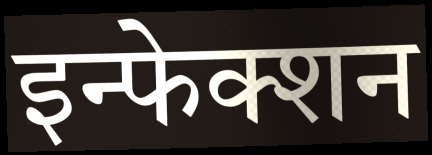
इन्फेक्शन